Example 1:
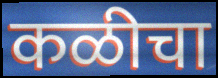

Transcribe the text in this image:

कळीचा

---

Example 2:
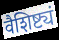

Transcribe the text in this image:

वैशिष्ट्यं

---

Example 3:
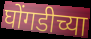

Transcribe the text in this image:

घोंगडीच्या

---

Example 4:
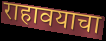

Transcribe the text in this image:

राहावयाचा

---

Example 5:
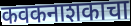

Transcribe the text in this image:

कवकनाशकाचा